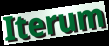
Iterum